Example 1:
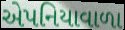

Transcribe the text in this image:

એપનિયાવાળા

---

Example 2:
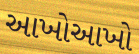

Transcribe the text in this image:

આખોઆખો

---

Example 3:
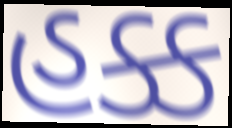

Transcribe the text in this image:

હક્ક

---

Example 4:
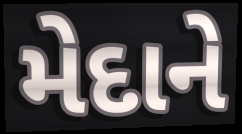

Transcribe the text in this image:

મેદાને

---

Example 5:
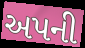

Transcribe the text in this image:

અપની